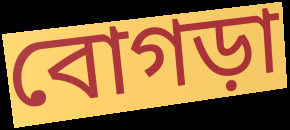
বোগড়া